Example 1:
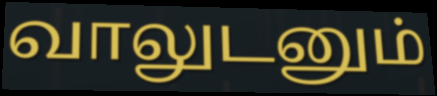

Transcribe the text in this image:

வாலுடனும்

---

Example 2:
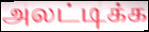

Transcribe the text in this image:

அலட்டிக்க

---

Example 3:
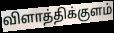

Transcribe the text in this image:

விளாத்திக்குளம்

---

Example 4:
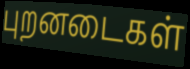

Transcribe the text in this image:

புறனடைகள்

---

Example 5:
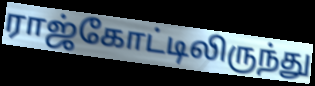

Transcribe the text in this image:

ராஜ்கோட்டிலிருந்து